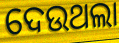
ଦେଉଥଲା